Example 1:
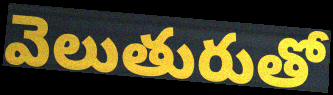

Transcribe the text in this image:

వెలుతురుతో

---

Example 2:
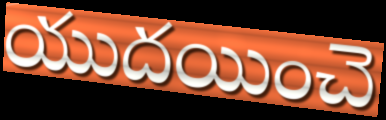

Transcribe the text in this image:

యుదయించె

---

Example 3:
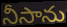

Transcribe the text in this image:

నీసాను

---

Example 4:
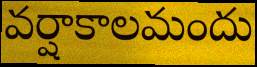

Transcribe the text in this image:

వర్షాకాలమందు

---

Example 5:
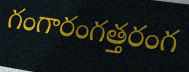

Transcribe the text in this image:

గంగారంగత్తరంగ